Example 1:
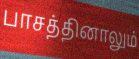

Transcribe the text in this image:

பாசத்தினாலும்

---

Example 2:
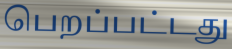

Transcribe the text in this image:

பெறப்பட்டது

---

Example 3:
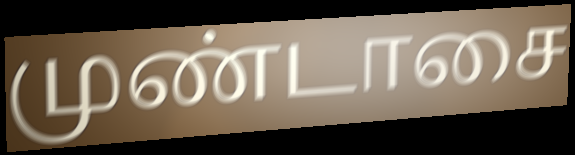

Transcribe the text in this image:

முண்டாசை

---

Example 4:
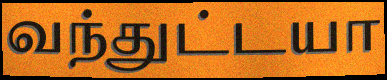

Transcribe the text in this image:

வந்துட்டயா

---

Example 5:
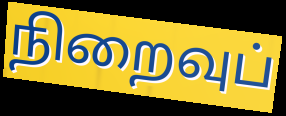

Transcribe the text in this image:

நிறைவுப்